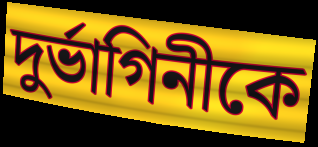
দুর্ভাগিনীকে